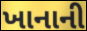
ખાનાની